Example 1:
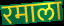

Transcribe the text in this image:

रमाला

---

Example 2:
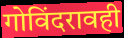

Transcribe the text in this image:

गोविंदरावही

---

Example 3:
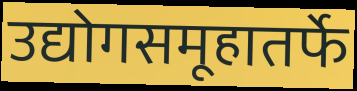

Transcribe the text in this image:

उद्योगसमूहातर्फे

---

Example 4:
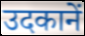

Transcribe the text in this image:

उदकानें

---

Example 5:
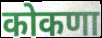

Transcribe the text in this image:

कोकणा